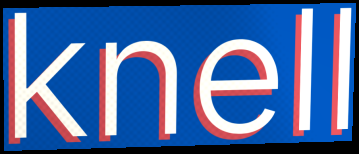
knell